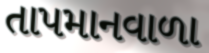
તાપમાનવાળા